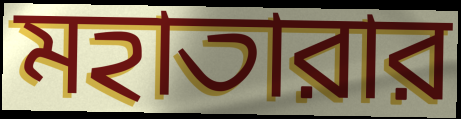
মহাতারার